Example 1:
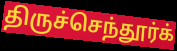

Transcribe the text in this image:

திருச்செந்தூர்க்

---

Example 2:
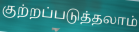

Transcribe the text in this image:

குற்றப்படுத்தலாம்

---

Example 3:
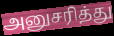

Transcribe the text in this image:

அனுசரித்து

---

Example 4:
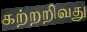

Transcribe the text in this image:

கற்றறிவது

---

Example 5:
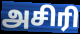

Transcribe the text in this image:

அசிரி